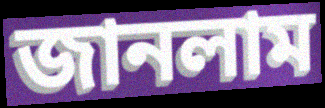
জানলাম